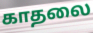
காதலை